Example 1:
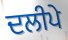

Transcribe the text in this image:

ਦਲੀਪੇ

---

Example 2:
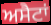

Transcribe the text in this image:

ਅਸੈਟਾਂ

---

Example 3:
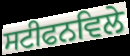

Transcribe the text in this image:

ਸਟੀਫਨਵਿਲੇ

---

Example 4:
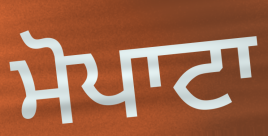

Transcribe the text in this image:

ਮੋਪਾਟਾ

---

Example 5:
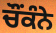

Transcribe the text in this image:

ਚੌਂਕੰਨੇ